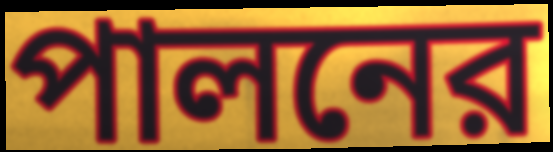
পালনের